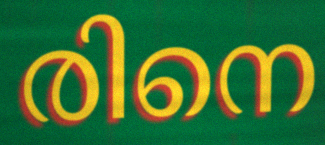
രിനെ